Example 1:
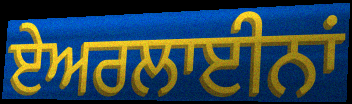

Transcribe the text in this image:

ਏਅਰਲਾਈਨਾਂ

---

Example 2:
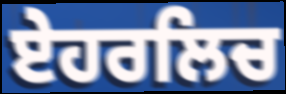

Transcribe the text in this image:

ਏਹਰਲਿਚ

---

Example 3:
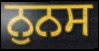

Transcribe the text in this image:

ਨੁਨਸ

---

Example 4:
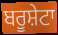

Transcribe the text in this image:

ਬਰੂਸ਼ੇਟਾ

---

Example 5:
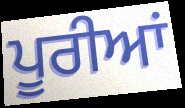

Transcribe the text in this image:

ਪੂਰੀਆਂ